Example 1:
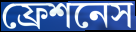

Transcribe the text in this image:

ফ্রেশনেস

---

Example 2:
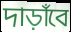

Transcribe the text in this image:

দাড়াঁবে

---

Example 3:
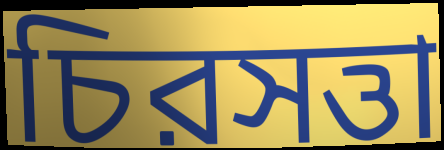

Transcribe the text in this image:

চিরসত্তা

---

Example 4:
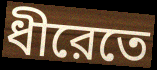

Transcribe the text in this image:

ধীরেতে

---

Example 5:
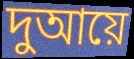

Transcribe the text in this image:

দুআয়ে